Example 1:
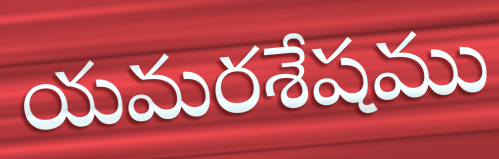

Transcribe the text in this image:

యమరశేషము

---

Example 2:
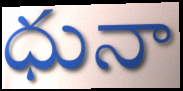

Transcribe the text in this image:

ధునా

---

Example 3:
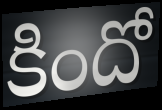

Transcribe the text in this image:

కిందో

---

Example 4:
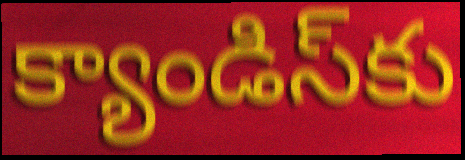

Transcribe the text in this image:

క్యాండిస్‌కు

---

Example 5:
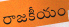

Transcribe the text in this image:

రాజకీయం